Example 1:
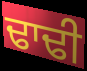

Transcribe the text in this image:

ਢਾਢੀ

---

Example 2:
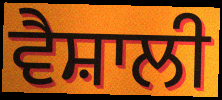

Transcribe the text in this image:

ਵੈਸ਼ਾਲੀ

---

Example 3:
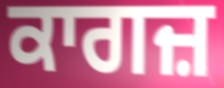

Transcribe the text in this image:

ਕਾਗਜ਼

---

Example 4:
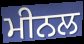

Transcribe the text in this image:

ਮੀਨਲ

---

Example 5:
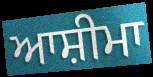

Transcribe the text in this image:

ਆਸ਼ੀਮਾ